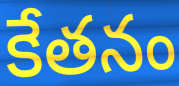
కేతనం